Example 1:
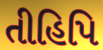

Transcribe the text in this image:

તીહિપિ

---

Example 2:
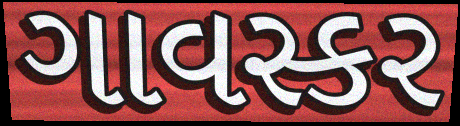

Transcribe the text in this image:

ગાવસ્કર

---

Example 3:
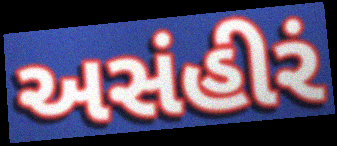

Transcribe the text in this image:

અસંહીરં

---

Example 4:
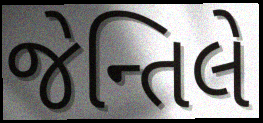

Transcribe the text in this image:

જેન્તિલે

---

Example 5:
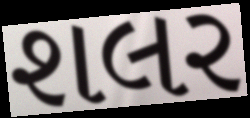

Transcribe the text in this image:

શલર